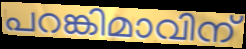
പറങ്കിമാവിന്